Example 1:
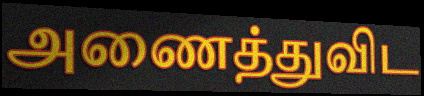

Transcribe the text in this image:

அணைத்துவிட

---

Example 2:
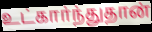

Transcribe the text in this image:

உட்கார்ந்துதான்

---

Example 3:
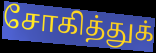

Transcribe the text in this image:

சோகித்துக்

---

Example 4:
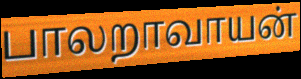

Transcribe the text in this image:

பாலறாவாயன்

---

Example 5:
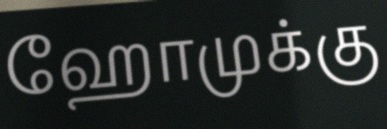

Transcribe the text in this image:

ஹோமுக்கு